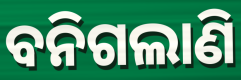
ବନିଗଲାଣି